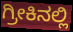
ಗ್ರೀಕಿನಲ್ಲಿ